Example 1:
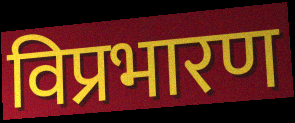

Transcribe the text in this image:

विप्रभारण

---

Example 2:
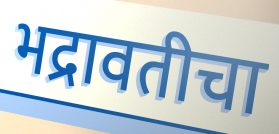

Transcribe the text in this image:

भद्रावतीचा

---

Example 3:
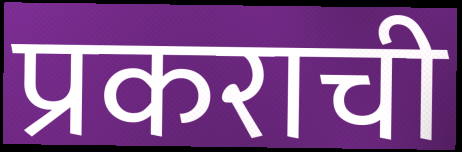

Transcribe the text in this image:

प्रकराची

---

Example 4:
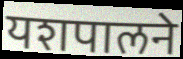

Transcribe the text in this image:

यशपालने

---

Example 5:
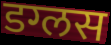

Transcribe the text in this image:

डग्लस